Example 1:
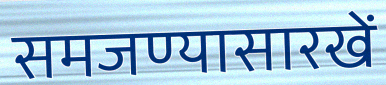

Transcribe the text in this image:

समजण्यासारखें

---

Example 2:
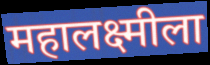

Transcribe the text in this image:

महालक्ष्मीला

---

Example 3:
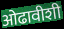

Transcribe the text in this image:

ओढावीशी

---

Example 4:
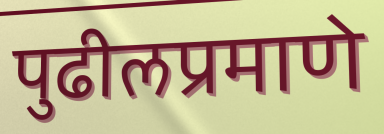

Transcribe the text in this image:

पुढीलप्रमाणे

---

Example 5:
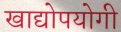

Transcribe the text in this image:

खाद्योपयोगी